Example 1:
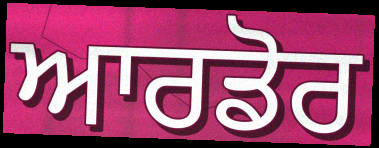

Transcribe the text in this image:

ਆਰਡੋਰ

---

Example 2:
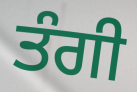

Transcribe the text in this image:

ਤੰਗੀ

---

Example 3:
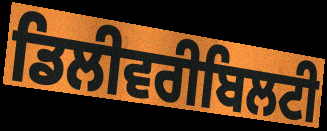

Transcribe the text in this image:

ਡਿਲੀਵਰੀਬਿਲਟੀ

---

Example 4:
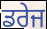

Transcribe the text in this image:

ਡਰੇਜ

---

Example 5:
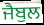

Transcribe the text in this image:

ਜੈਬੁਲ